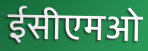
ईसीएमओ